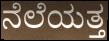
ನೆಲೆಯತ್ತ